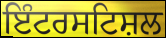
ਇੰਟਰਸਟਿਸ਼ਲ